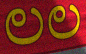
ಲಲ